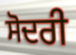
ਸੋਦਰੀ